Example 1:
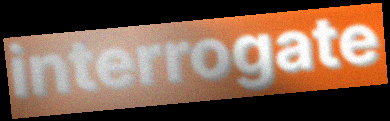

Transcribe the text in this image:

interrogate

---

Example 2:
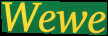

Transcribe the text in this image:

Wewe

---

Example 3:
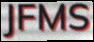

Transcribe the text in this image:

JFMS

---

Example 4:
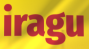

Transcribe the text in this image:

iragu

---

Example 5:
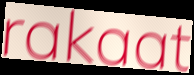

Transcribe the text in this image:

rakaat